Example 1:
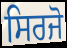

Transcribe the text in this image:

ਸਿਰਜੋ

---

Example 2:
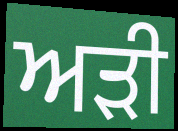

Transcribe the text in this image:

ਅੜੀ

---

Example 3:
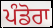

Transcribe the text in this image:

ਪੰਡੋਰਾ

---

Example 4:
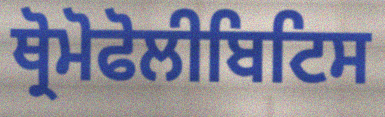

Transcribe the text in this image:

ਥ੍ਰੋਮੋਫੋਲੀਬਿਟਿਸ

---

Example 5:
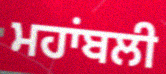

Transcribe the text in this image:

ਮਹਾਂਬਲੀ